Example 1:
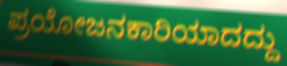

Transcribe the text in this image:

ಪ್ರಯೋಜನಕಾರಿಯಾದದ್ದು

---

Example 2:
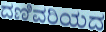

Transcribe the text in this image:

ದಣಿವರಿಯದ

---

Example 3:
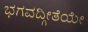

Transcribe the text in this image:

ಭಗವದ್ಗೀತೆಯೇ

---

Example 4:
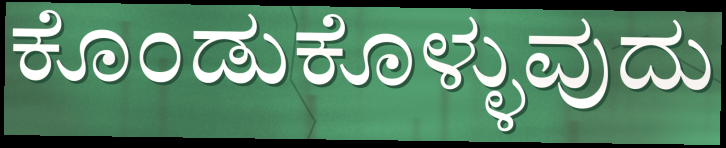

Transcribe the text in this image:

ಕೊಂಡುಕೊಳ್ಳುವುದು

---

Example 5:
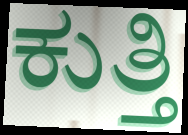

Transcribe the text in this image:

ಕುತ್ತಿ